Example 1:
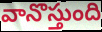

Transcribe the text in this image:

వానొస్తుంది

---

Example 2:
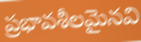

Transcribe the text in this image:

ప్రభావశీలమైనవి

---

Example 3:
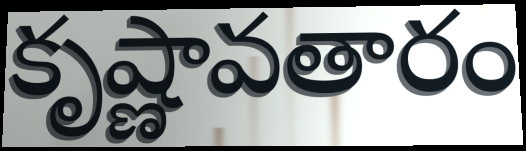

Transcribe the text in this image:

కృష్ణావతారం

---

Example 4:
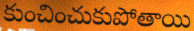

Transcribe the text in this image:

కుంచించుకుపోతాయి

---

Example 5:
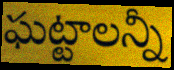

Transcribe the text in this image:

ఘట్టాలన్నీ